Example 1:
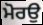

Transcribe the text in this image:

ਮੋਰਉ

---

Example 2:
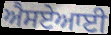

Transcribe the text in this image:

ਐਸਏਆਈ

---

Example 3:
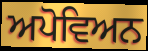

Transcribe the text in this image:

ਅਪੋਵਿਅਨ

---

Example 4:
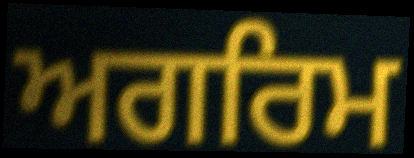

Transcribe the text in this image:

ਅਗਰਿਮ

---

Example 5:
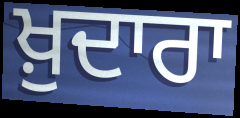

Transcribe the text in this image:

ਖ਼ੁਦਾਰਾ